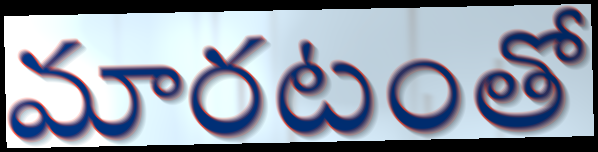
మారటంతో